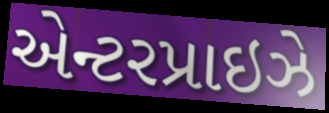
એન્ટરપ્રાઇઝે